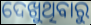
ଦେଖୁଥିବାରୁ